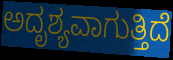
ಅದೃಶ್ಯವಾಗುತ್ತಿದೆ